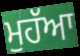
ਮੁਹੱਆ